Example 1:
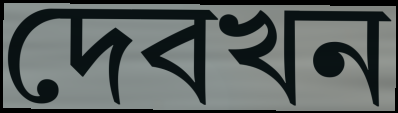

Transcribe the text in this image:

দেবখন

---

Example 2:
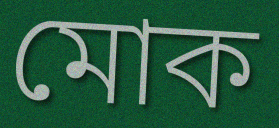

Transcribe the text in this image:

মোক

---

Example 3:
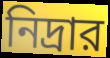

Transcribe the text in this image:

নিদ্রার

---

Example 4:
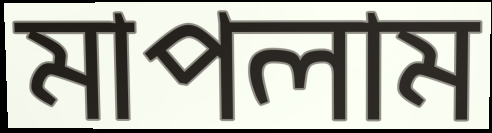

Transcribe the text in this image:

মাপলাম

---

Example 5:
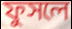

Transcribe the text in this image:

ফুসলে